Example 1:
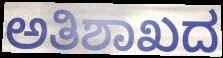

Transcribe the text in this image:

ಅತಿಶಾಖದ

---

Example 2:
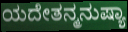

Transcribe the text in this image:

ಯದೇತನ್ಮನುಷ್ಯಾ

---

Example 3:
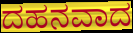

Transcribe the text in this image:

ದಹನವಾದ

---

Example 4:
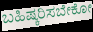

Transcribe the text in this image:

ಬಹಿಷ್ಕರಿಸಬೇಕೋ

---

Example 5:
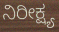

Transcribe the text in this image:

ನಿರೀಕ್ಷ್ಯ